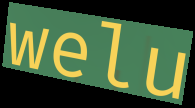
welu